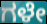
ಗಳೇ